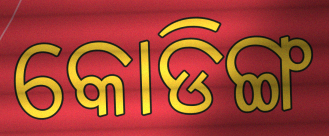
କୋଡିଙ୍ଗ